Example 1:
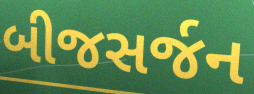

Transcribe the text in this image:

બીજસર્જન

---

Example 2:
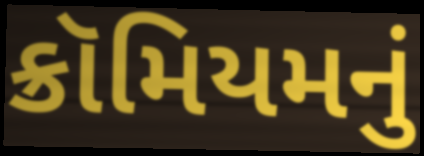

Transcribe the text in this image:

ક્રૉમિયમનું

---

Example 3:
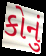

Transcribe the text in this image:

કોનું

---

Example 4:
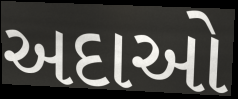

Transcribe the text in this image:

અદાઓ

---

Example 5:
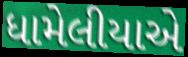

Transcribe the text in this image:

ધામેલીયાએ